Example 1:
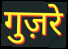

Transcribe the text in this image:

गुज़रे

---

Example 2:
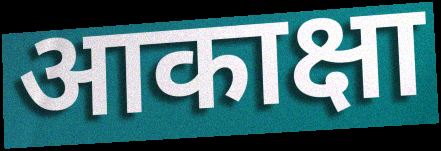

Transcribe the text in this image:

आकाक्षा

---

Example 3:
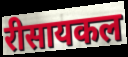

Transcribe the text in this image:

रीसायकल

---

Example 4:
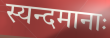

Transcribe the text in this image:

स्यन्दमानाः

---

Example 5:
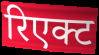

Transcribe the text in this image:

रिएक्ट